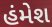
હંમેશ